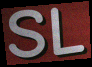
SL